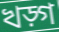
খড়্গ